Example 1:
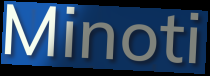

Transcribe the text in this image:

Minoti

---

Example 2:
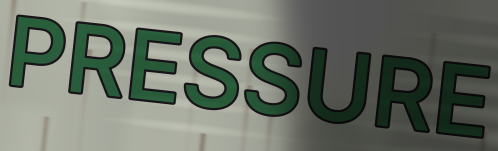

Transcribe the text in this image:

PRESSURE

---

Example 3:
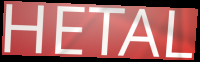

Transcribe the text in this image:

HETAL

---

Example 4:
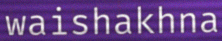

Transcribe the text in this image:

waishakhna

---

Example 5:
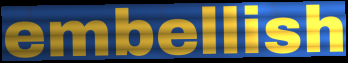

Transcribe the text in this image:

embellish